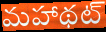
మహాథట్